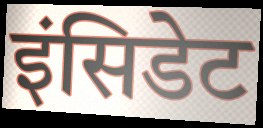
इंसिडेट